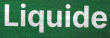
Liquide